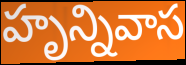
హృన్నివాస